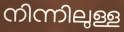
നിന്നിലുള്ള